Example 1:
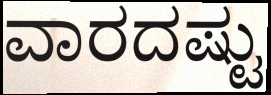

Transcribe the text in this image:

ವಾರದಷ್ಟು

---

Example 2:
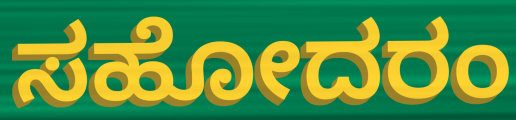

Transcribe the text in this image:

ಸಹೋದರಂ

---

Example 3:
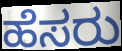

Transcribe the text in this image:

ಹೆಸರು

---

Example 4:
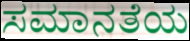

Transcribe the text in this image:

ಸಮಾನತೆಯ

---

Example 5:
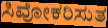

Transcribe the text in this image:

ಸಿವೋಕರಿಸುತ